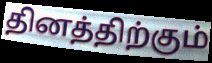
தினத்திற்கும்